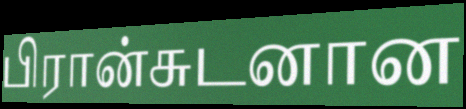
பிரான்சுடனான